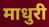
माधुरी